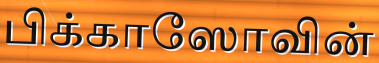
பிக்காஸோவின்